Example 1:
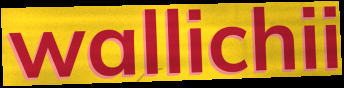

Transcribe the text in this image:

wallichii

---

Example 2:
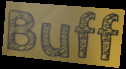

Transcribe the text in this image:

Buff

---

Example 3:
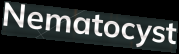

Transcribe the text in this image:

Nematocyst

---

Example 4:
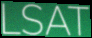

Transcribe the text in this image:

LSAT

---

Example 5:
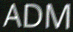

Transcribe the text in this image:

ADM